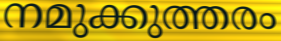
നമുക്കുത്തരം